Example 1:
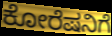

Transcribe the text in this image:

ಕೋರೆಷನಿಗೆ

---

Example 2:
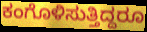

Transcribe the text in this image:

ಕಂಗೊಳಿಸುತ್ತಿದ್ದರೂ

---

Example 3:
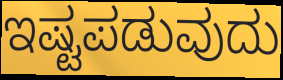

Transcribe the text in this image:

ಇಷ್ಟಪಡುವುದು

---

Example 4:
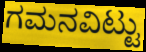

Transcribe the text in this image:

ಗಮನವಿಟ್ಟು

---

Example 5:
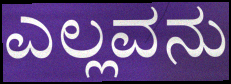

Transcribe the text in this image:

ಎಲ್ಲವನು